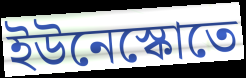
ইউনেস্কোতে